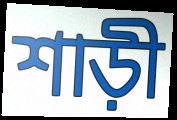
শাড়ী